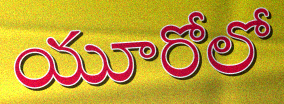
యూరోలో